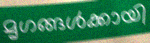
മൃഗങ്ങൾക്കായി